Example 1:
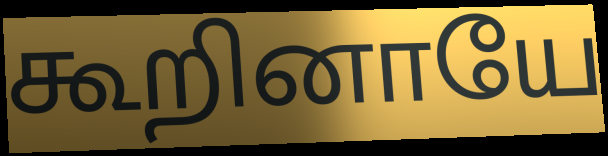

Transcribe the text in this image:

கூறினாயே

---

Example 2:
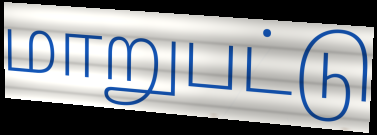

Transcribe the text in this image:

மாறுபட்டு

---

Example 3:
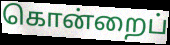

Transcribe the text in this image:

கொன்றைப்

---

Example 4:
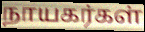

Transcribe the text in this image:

நாயகர்கள்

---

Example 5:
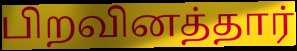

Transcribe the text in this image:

பிறவினத்தார்